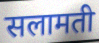
सलामती